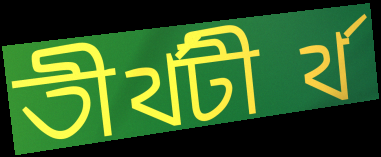
তীর্থটীর্থ